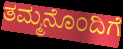
ತಮ್ಮನೊಂದಿಗೆ